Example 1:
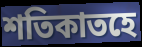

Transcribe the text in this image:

শতিকাতহে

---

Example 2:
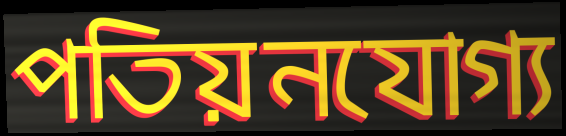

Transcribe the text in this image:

পতিয়নযোগ্য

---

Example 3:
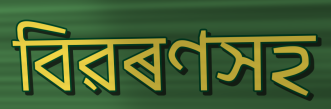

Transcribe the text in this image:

বিৱৰণসহ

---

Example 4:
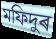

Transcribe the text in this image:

মফিদুৰ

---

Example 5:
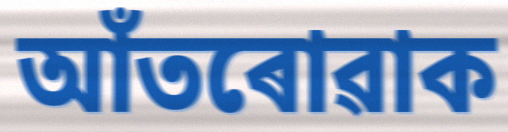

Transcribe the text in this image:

আঁতৰোৱাক